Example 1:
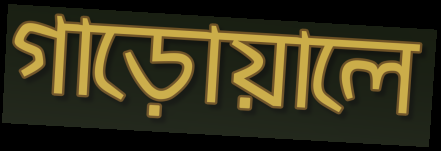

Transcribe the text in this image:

গাড়োয়ালে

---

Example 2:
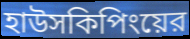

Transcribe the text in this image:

হাউসকিপিংয়ের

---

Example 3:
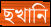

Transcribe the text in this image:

ছখানি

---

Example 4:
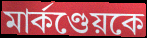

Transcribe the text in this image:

মার্কণ্ডেয়কে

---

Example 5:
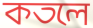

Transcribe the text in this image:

কতলে